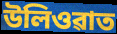
উলিওৱাত